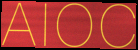
AIOC